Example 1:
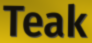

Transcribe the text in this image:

Teak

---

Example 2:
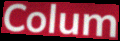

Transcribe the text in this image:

Colum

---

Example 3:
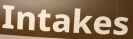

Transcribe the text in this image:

Intakes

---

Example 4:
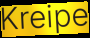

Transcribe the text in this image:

Kreipe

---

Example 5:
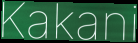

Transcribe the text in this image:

Kakani